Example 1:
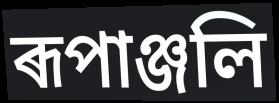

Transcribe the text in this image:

ৰূপাঞ্জলি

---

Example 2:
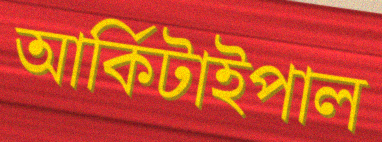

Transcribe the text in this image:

আৰ্কিটাইপাল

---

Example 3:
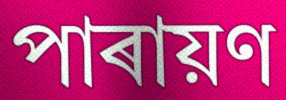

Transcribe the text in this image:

পাৰায়ণ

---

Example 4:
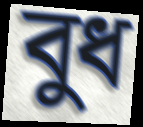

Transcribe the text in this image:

বুধ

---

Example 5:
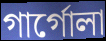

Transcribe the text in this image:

গাৰ্গোলা